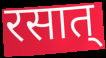
रसात्